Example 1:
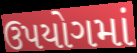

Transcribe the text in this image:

ઉપયોગમાં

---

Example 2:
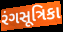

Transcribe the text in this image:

રંગસૂત્રિકા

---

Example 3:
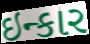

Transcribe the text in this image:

ઇન્કાર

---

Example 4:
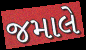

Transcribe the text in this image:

જમાલે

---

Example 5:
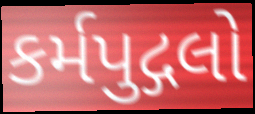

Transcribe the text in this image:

કર્મપુદ્ગલો